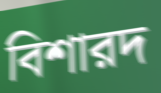
বিশারদ